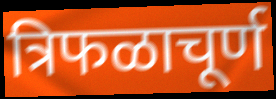
त्रिफळाचूर्ण